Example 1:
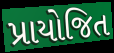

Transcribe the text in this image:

પ્રાયોજિત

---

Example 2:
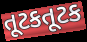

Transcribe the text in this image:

તૂટકતૂટક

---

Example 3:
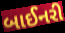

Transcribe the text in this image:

બાઈનરી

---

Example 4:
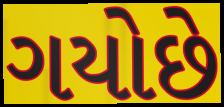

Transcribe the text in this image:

ગયોછે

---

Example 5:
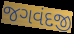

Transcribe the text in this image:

જગવંદજી